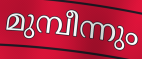
മുമ്പീന്നും